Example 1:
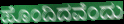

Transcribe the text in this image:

ಹೊಂದಿದವೆಂದು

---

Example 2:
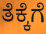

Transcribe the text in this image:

ತೆಕ್ಕೆಗೆ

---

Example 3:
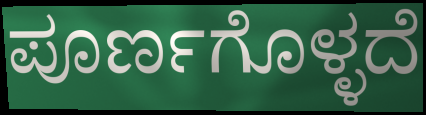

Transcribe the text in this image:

ಪೂರ್ಣಗೊಳ್ಳದೆ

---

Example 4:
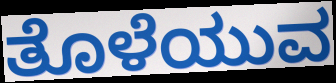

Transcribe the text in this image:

ತೊಳೆಯುವ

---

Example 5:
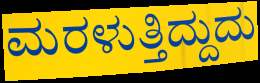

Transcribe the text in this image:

ಮರಳುತ್ತಿದ್ದುದು